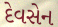
દેવસેન